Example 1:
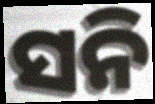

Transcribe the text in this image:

ସନି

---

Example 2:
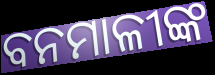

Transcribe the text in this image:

ବନମାଳୀଙ୍କ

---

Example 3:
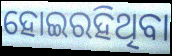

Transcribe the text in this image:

ହୋଇରହିଥିବା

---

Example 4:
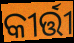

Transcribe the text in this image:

କୀର୍ତ୍ତୀ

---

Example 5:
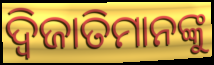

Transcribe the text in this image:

ଦ୍ୱିଜାତିମାନଙ୍କୁ